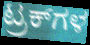
ಟ್ರಕ್‌ಗಳ